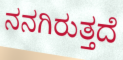
ನನಗಿರುತ್ತದೆ